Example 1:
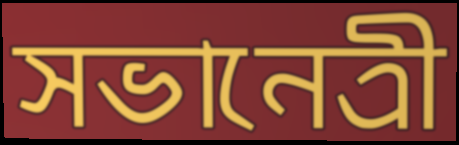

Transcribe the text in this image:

সভানেত্ৰী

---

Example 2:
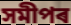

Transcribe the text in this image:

সমীপৰ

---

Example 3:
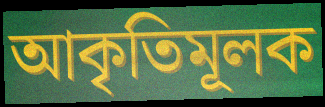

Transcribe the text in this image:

আকৃতিমূলক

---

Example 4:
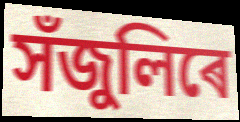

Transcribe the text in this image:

সঁজুলিৰে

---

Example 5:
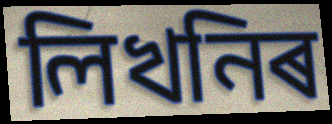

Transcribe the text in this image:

লিখনিৰ